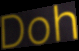
Doh